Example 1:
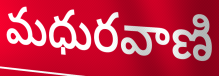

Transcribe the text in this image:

మధురవాణి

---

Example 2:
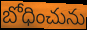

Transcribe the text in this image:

బోధించును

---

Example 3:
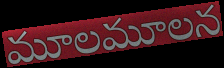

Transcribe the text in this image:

మూలమూలన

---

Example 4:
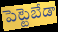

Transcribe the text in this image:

పెట్టెబేడా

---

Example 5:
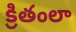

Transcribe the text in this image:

క్రితంలా